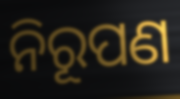
ନିରୂପଣ